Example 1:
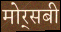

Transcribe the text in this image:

मोर्सबी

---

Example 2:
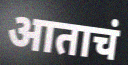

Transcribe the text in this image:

आताचं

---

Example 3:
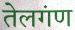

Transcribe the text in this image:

तेलगंण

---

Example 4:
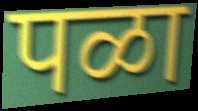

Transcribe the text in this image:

पळा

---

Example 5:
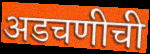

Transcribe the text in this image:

अडचणीची